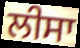
ਲੀਸਾ